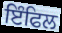
ਇੰਫਿਲ